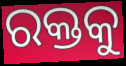
ରକ୍ତକୁ